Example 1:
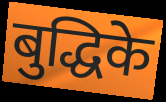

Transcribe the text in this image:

बुद्धिके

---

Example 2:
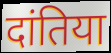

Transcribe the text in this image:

दांतिया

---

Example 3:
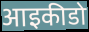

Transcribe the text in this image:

आइकीडो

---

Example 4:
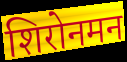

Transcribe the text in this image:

शिरोनमन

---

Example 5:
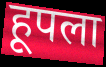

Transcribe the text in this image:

हूपला